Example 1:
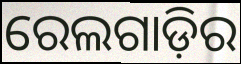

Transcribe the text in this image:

ରେଲଗାଡ଼ିର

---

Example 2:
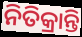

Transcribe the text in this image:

ନିତିକ୍ରାନ୍ତି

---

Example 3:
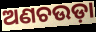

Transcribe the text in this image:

ଅଣଚଉଡ଼ା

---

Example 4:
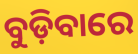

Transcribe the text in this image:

ବୁଡ଼ିବାରେ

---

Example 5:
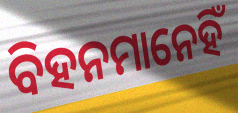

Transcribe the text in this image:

ବିହନମାନେହିଁ